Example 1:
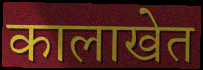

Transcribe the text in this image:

कालाखेत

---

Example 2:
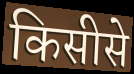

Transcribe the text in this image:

किसीसे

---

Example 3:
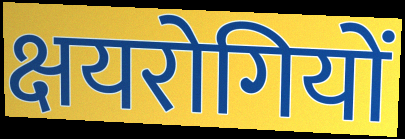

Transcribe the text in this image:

क्षयरोगियों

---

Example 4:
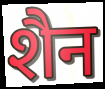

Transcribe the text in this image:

शैन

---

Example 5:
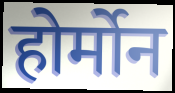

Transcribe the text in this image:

होर्मोन